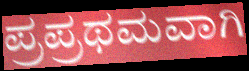
ಪ್ರಪ್ರಥಮವಾಗಿ